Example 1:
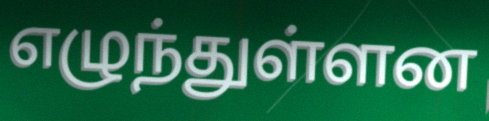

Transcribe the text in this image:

எழுந்துள்ளன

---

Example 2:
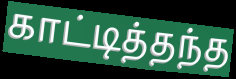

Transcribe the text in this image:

காட்டித்தந்த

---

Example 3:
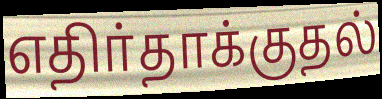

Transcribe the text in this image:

எதிர்தாக்குதல்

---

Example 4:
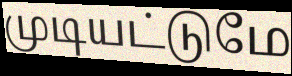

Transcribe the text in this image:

முடியட்டுமே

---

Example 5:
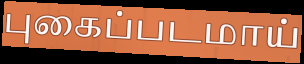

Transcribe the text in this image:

புகைப்படமாய்